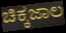
ಚಿಕ್ಕಜಾಲ